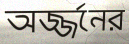
অর্জ্জনের